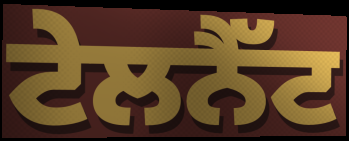
ਟੇਲਨੈੱਟ